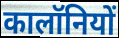
कालॉनियों